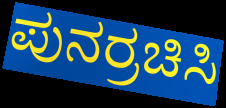
ಪುನರ್ರಚಿಸಿ